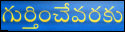
గుర్తించేవరకు